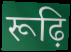
रूढ़ि